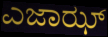
ಎಜಾಝ್